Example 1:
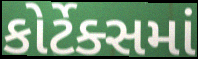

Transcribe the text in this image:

કોર્ટેક્સમાં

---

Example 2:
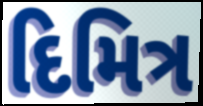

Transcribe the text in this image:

દિમિત્ર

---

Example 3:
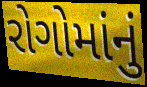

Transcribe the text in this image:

રોગોમાંનું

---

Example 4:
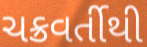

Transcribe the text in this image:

ચક્રવર્તીથી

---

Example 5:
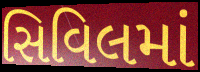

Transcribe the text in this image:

સિવિલમાં